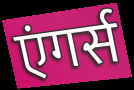
एंगर्स